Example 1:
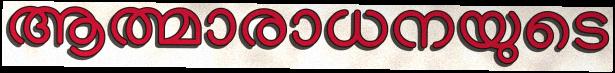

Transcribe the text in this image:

ആത്മാരാധനയുടെ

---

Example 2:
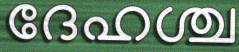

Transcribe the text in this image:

ദേഹശ്ച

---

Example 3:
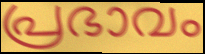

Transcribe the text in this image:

പ്രഭാവം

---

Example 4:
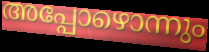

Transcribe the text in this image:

അപ്പോഴൊന്നും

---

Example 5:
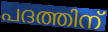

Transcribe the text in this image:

പദത്തിന്